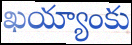
ఖయ్యాంకు